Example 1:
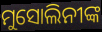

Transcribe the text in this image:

ମୁସୋଲିନୀଙ୍କ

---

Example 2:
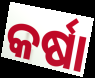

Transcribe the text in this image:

କର୍ଷା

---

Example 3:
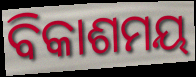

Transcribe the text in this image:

ବିକାଶମୟ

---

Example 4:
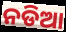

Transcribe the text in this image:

ନଡିଆ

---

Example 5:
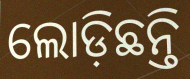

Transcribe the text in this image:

ଲୋଡ଼ିଛନ୍ତି